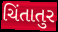
ચિંતાતુર